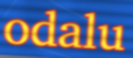
odalu